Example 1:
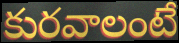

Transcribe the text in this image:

కురవాలంటే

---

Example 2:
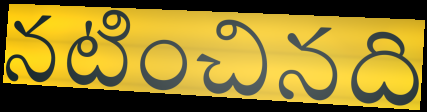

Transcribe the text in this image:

నటించినది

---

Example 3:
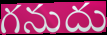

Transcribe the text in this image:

గనుదు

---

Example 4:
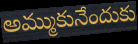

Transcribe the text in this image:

అమ్ముకునేందుకు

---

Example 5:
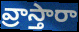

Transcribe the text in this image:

వ్రాస్తారా